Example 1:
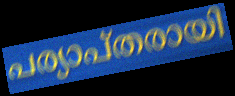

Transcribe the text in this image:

പര്യാപ്തരായി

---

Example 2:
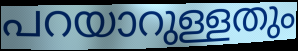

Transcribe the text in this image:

പറയാറുള്ളതും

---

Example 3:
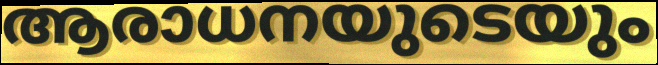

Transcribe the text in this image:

ആരാധനയുടെയും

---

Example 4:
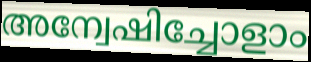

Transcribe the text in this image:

അന്വേഷിച്ചോളാം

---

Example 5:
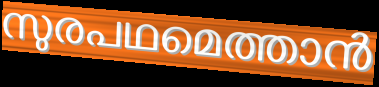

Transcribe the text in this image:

സുരപഥമെത്താൻ